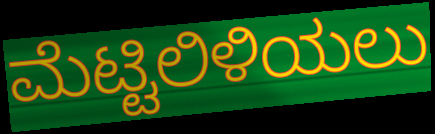
ಮೆಟ್ಟಿಲಿಳಿಯಲು